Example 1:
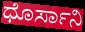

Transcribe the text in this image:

ಧೊರ್ಸಾನಿ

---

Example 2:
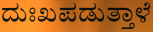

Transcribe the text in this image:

ದುಃಖಪಡುತ್ತಾಳೆ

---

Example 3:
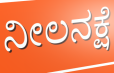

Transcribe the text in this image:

ನೀಲನಕ್ಷೆ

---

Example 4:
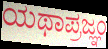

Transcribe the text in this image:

ಯಥಾಪ್ರಜ್ಞಂ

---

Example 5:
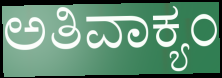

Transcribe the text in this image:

ಅತಿವಾಕ್ಯಂ